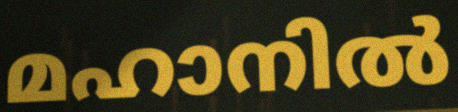
മഹാനിൽ